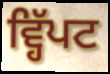
ਵ੍ਹਿੱਪਟ